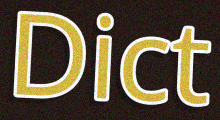
Dict